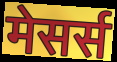
मेसर्स